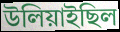
উলিয়াইছিল